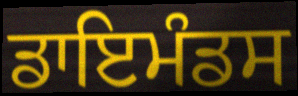
ਡਾਇਮੰਡਸ